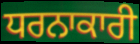
ਧਰਨਾਕਾਰੀ